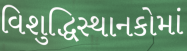
વિશુદ્ધિસ્થાનકોમાં